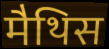
मैथिस